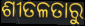
ଶୀତଳତାରୁ